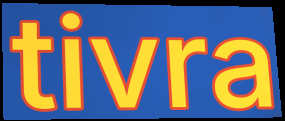
tivra